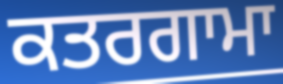
ਕਤਰਗਾਮਾ